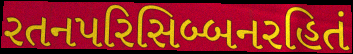
રતનપરિસિબ્બનરહિતં